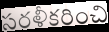
సరళీకరించి